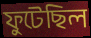
ফুটেছিল